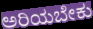
ಅರಿಯಬೇಕು